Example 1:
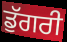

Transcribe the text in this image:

ਡੁੱਗਰੀ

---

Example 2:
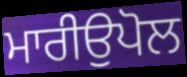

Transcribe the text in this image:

ਮਾਰੀਉਪੋਲ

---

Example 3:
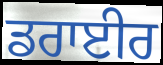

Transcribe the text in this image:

ਡਰਾਈਰ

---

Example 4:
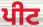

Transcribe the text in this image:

ਪੀਟ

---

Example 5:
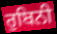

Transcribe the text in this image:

ਰੁਬਿਨੀ